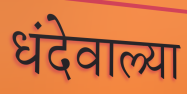
धंदेवाल्या